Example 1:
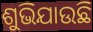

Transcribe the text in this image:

ଶୁଭିଯାଉଛି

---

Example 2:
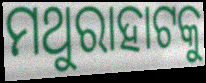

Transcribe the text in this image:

ମଥୁରାହାଟକୁ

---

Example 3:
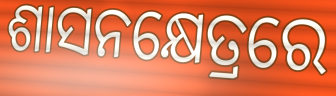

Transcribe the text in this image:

ଶାସନକ୍ଷେତ୍ରରେ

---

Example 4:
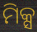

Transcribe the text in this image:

ମିକ୍ସ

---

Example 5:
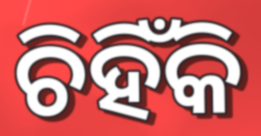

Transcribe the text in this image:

ଚିହିଁକି